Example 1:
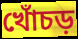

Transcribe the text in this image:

খোঁচড়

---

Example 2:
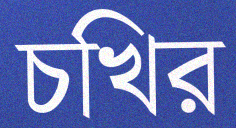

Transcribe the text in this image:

চখির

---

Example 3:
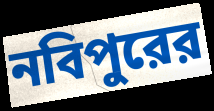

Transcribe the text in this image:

নবিপুরের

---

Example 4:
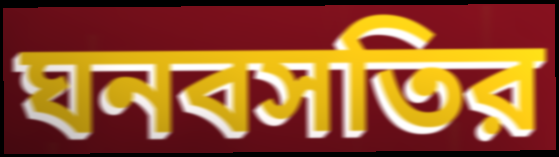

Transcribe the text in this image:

ঘনবসতির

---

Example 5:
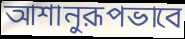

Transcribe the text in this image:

আশানুরূপভাবে